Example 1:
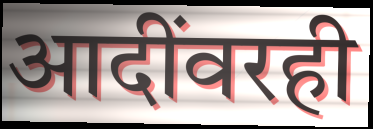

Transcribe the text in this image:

आदींवरही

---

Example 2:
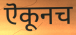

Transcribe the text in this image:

ऎकूनच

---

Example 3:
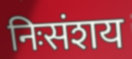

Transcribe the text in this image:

निःसंशय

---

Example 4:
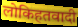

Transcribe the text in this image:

लोकिहतवादी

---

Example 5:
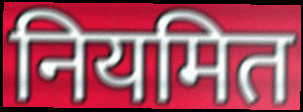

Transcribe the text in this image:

नियमित